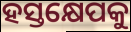
ହସ୍ତକ୍ଷେପକୁ